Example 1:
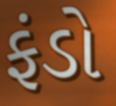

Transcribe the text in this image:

ફંડો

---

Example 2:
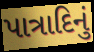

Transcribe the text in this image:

પાત્રાદિનું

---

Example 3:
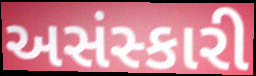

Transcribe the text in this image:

અસંસ્કારી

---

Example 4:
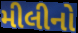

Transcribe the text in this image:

મીલીનો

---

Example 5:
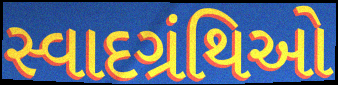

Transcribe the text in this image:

સ્વાદગ્રંથિઓ